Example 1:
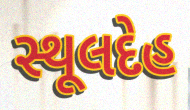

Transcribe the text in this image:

સ્થૂલદેહ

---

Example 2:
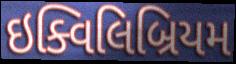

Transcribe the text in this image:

ઇક્વિલિબ્રિયમ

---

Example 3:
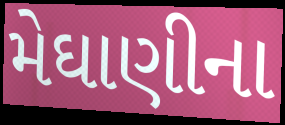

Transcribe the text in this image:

મેઘાણીના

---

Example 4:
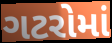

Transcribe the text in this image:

ગટરોમાં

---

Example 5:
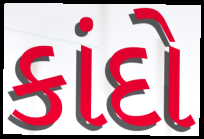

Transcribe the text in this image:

કાંદો